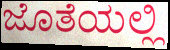
ಜೊತೆಯಲ್ಲಿ